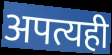
अपत्यही